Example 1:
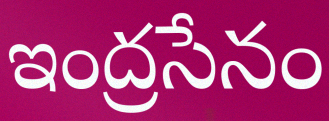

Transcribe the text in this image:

ఇంద్రసేనం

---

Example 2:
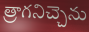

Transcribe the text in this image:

త్రాగనిచ్చెను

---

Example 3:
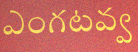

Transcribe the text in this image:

ఎంగటవ్వ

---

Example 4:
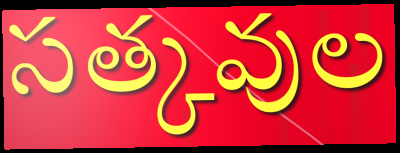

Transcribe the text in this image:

సత్కవుల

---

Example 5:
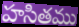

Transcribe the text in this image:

హసితము